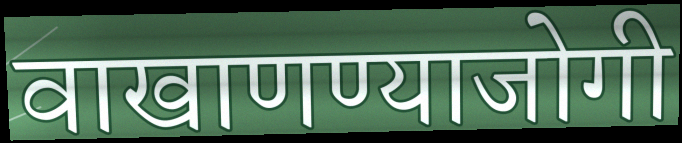
वाखाणण्याजोगी